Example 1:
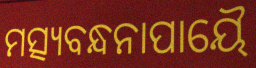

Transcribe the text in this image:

ମତ୍ସ୍ୟବନ୍ଧନାପାୟୈ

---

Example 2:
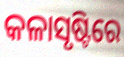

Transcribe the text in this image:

କଳାସୃଷ୍ଟିରେ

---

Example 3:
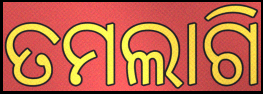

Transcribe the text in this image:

ତମଲାଗି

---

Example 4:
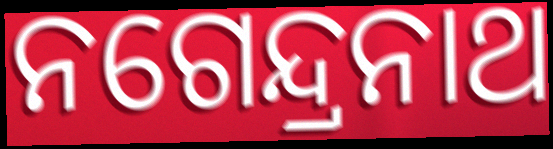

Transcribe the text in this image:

ନଗେନ୍ଦ୍ରନାଥ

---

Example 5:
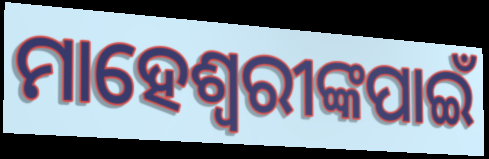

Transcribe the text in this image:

ମାହେଶ୍ୱରୀଙ୍କପାଇଁ